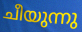
ചീയുന്നു